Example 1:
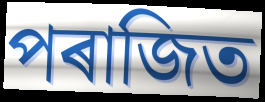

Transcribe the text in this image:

পৰাজিত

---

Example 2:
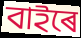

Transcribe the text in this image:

বাইৰে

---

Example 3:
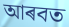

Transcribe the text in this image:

আৰবত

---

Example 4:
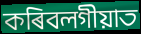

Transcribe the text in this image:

কৰিবলগীয়াত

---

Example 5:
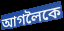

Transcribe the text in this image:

আগলৈকে